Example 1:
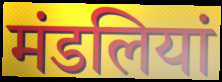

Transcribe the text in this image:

मंडलियां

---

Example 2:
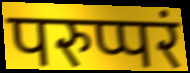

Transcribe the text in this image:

परुप्परं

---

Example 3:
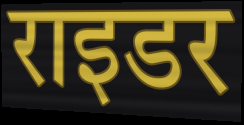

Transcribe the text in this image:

राइडर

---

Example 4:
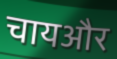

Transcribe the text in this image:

चायऔर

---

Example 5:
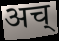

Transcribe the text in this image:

अच्